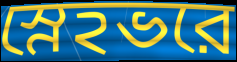
স্নেহভরে